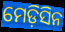
ମେଡ଼ିସିନ